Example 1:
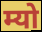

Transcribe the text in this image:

म्यो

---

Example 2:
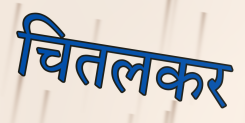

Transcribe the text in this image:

चितलकर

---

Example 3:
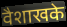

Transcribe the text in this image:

वैशाखके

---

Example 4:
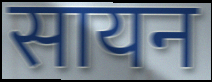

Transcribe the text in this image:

सायन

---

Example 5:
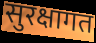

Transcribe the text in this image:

सुरक्षागत